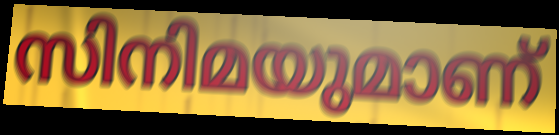
സിനിമയുമാണ്